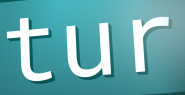
tur